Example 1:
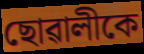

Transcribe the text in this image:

ছোৱালীকে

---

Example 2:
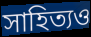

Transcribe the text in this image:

সাহিত্যও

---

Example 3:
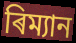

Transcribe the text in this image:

ৰিম্যান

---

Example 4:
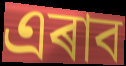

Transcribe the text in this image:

এৰাব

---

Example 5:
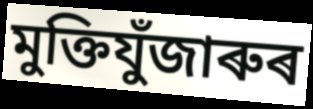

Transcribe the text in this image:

মুক্তিযুঁজাৰুৰ